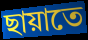
ছায়াতে